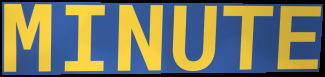
MINUTE